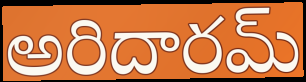
అరిదారమ్